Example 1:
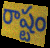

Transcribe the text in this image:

రాష్టం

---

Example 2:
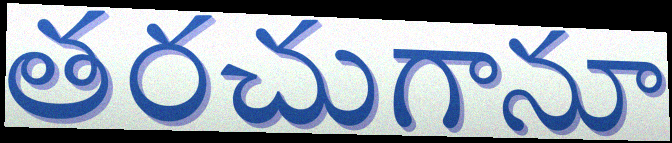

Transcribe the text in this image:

తరచుగానూ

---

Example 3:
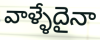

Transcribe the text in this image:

వాళ్ళేదైనా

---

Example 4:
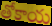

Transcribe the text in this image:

తోకాయ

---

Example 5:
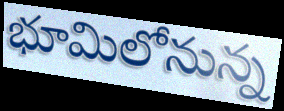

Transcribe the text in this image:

భూమిలోనున్న